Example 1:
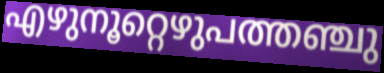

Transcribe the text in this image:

എഴുനൂറ്റെഴുപത്തഞ്ചു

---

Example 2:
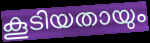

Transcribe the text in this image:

കൂടിയതായും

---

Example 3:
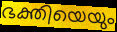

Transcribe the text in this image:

ഭക്തിയെയും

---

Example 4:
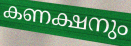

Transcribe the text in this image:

കണക്ഷനും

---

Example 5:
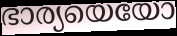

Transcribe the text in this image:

ഭാര്യയെയോ